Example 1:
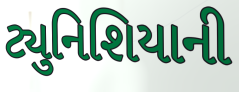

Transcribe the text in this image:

ટ્યુનિશિયાની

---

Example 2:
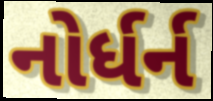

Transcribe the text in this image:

નોર્ધર્ન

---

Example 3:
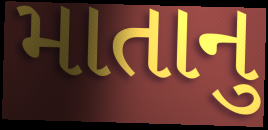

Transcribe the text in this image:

માતાનુ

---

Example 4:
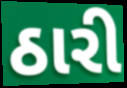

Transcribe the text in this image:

ઠારી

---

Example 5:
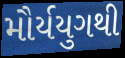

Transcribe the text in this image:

મૌર્યયુગથી